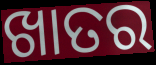
ଖାତର